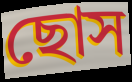
ছোস